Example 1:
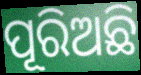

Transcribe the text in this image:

ପୂରିଅଛି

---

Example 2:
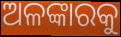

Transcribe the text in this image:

ଅଳଙ୍କାରକୁ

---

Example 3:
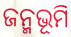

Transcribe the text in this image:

ଜନ୍ମଭୂମି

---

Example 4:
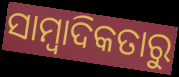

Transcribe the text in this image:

ସାମ୍ବାଦିକତାରୁ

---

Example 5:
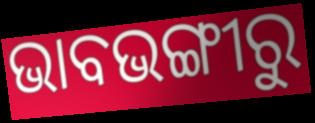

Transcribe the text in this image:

ଭାବଭଙ୍ଗୀରୁ